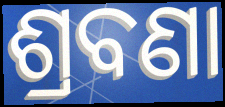
ଶ୍ରବଣା